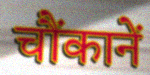
चौंकानें